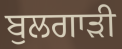
ਬੁਲਗਾੜੀ